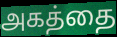
அகத்தை